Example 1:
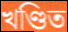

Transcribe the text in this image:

খণ্ডিত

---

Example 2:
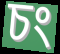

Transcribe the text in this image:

চং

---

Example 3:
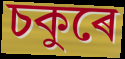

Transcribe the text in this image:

চকুৰে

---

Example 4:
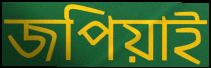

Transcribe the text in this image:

জপিয়াই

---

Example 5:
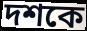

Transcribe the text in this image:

দশকে